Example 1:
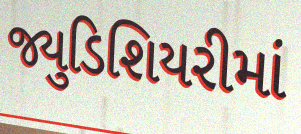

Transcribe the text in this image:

જ્યુડિશિયરીમાં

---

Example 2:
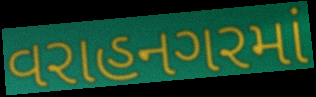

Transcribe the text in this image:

વરાહનગરમાં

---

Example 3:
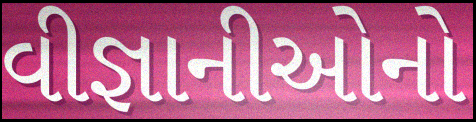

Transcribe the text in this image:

વીજ્ઞાનીઓનો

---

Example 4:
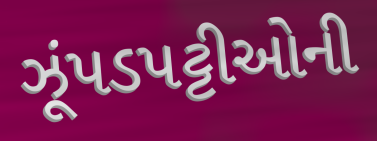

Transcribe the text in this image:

ઝૂંપડપટ્ટીઓની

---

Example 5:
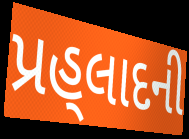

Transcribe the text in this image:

પ્રહ્‌લાદની